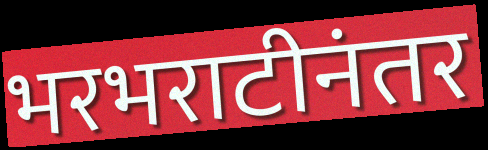
भरभराटीनंतर